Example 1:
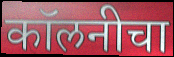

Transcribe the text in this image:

कॉलनीचा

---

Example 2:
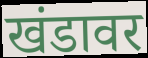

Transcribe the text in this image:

खंडावर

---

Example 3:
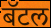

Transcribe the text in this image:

बॅटल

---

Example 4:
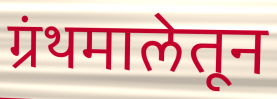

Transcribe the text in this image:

ग्रंथमालेतून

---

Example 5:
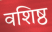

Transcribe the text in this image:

वशिष्ठ